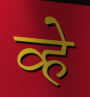
व्हे